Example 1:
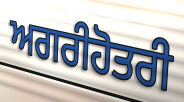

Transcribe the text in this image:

ਅਗਰੀਹੋਤਰੀ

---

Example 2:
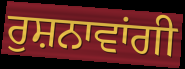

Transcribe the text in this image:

ਰੁਸ਼ਨਾਵਾਂਗੀ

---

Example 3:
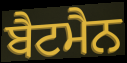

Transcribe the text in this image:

ਬੈਟਮੈਨ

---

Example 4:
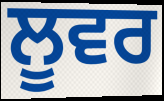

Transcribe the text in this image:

ਲੂਵਰ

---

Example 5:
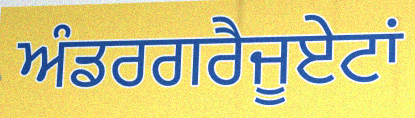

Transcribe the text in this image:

ਅੰਡਰਗਰੈਜੂਏਟਾਂ